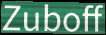
Zuboff